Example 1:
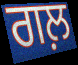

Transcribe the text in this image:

ਗਲ਼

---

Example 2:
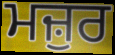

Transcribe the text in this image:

ਮਜ਼ੁਰ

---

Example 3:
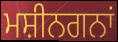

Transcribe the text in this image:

ਮਸ਼ੀਨਗਨਾਂ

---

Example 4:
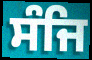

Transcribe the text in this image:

ਸੰਜਿ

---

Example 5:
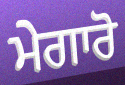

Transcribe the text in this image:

ਮੇਗਾਰੋ